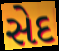
સેદ